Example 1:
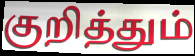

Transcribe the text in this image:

குறித்தும்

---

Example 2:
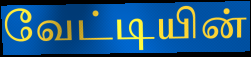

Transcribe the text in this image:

வேட்டியின்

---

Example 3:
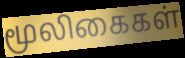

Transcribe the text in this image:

மூலிகைகள்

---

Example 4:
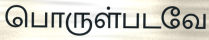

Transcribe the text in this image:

பொருள்படவே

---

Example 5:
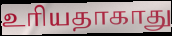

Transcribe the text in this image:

உரியதாகாது